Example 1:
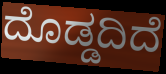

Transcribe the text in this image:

ದೊಡ್ಡದಿದೆ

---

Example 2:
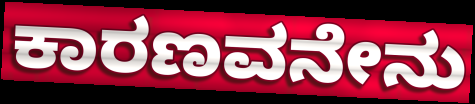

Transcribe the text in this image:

ಕಾರಣವನೇನು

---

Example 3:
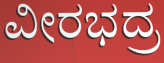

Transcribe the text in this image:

ವೀರಭದ್ರ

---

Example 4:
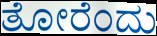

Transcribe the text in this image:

ತೋರೆಂದು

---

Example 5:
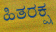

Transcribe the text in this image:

ಹಿತರಕ್ಷ